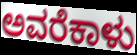
ಅವರೆಕಾಳು